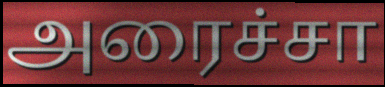
அரைச்சா